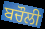
ਬਚੌਲੀ